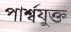
পার্শ্বযুক্ত